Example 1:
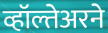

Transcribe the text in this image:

व्हॉल्तेअरने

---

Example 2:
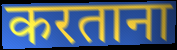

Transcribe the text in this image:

करताना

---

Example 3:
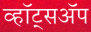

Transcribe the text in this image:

व्हॉट्सॲप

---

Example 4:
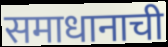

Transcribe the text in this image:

समाधानाची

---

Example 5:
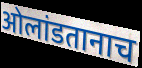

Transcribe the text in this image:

ओलांडतानाच